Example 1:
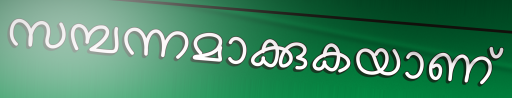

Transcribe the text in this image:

സമ്പന്നമാക്കുകയാണ്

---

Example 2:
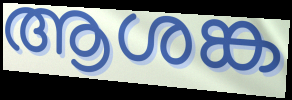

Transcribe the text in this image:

ആശങ്ക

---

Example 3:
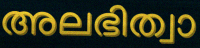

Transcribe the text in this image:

അലഭിത്വാ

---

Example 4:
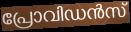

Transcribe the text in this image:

പ്രോവിഡൻസ്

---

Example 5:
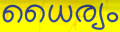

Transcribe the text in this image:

ധൈര്യം